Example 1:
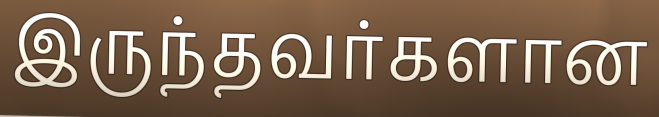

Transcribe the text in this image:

இருந்தவர்களான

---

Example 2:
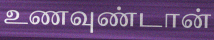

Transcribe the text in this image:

உணவுண்டான்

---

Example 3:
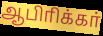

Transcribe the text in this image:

ஆபிரிக்கர்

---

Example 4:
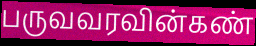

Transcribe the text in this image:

பருவவரவின்கண்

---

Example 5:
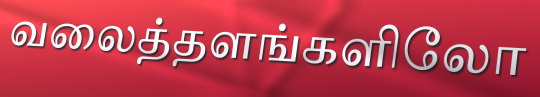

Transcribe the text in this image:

வலைத்தளங்களிலோ